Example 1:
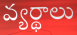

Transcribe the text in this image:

వ్యర్థాలు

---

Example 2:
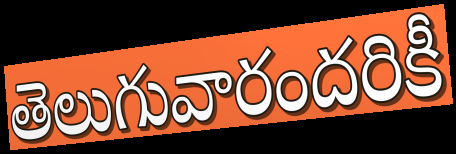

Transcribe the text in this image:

తెలుగువారందరికీ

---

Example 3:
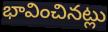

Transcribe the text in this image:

భావించినట్లు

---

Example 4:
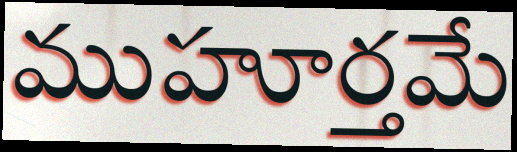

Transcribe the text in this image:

ముహూర్తమే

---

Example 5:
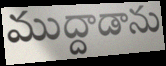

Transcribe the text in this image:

ముద్దాడాను